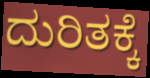
ದುರಿತಕ್ಕೆ